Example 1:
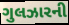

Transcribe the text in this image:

ગુલઝારની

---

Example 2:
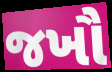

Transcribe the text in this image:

જખૌ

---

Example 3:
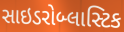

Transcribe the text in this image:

સાઇડરોબ્લાસ્ટિક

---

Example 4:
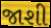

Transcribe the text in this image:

જાશી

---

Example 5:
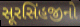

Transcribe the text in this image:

સૂરસિંહજીનો